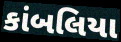
કાંબલિયા